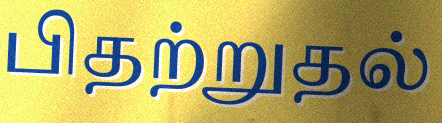
பிதற்றுதல்